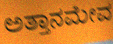
ಅತ್ತಾನಮೇವ